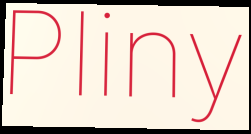
Pliny